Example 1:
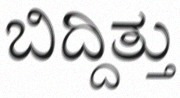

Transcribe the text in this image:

ಬಿದ್ದಿತ್ತು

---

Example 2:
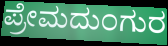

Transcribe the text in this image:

ಪ್ರೇಮದುಂಗುರ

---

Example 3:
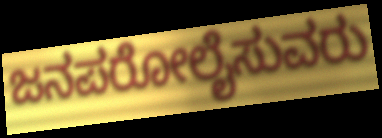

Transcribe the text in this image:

ಜನಪರೋಲೈಸುವರು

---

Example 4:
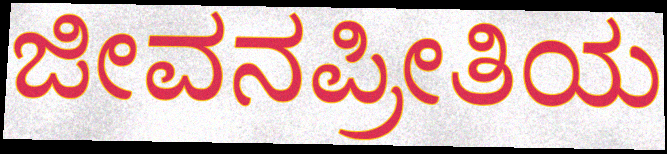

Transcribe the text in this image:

ಜೀವನಪ್ರೀತಿಯ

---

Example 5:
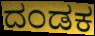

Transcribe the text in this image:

ದಂಡಕ